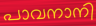
പാവനാനി